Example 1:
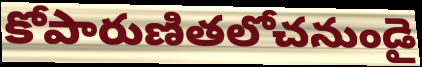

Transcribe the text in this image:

కోపారుణితలోచనుండై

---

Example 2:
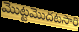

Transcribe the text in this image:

మొట్టమొదటసారి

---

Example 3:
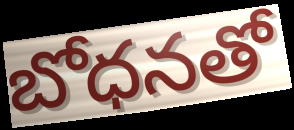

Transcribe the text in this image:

బోధనతో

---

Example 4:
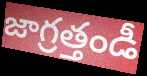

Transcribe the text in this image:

జాగ్రత్తండీ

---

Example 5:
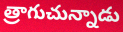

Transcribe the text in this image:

త్రాగుచున్నాడు